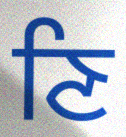
ਣਿ